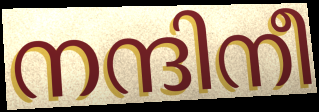
നന്ദിനീ